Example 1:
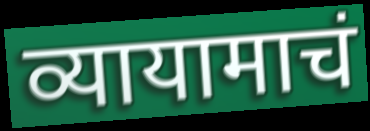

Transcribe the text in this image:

व्यायामाचं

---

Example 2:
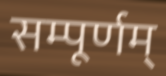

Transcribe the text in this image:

सम्पूर्णम्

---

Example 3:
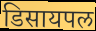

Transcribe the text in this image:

डिसायपल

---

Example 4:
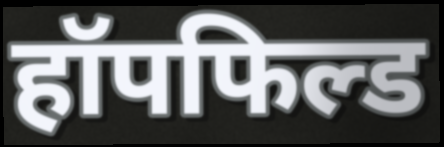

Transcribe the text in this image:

हॉपफिल्ड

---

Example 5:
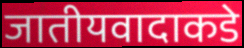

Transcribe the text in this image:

जातीयवादाकडे